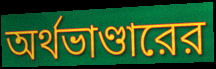
অর্থভাণ্ডারের